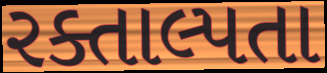
રક્તાલ્પતા